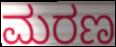
ಮರಣ